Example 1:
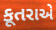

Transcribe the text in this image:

કૂતરાએ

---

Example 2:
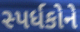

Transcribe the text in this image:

સ્પર્ધકોને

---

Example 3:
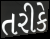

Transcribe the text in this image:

તરીકે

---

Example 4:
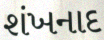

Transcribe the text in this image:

શંખનાદ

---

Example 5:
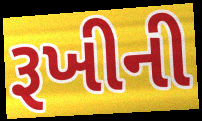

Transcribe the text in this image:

રૂખીની